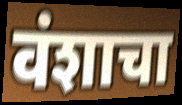
वंशाचा